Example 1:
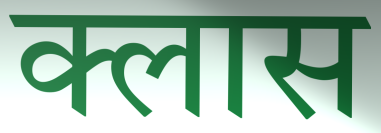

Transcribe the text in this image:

क्लास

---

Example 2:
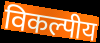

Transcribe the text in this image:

विकल्पीय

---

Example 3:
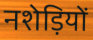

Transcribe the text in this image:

नशेड़ियों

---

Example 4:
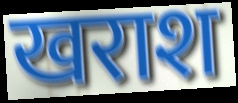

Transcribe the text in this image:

खराश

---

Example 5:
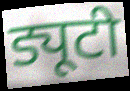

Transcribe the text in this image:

ड्यूटी